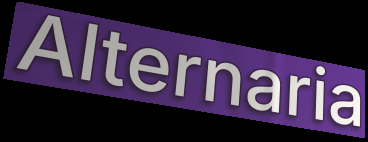
Alternaria